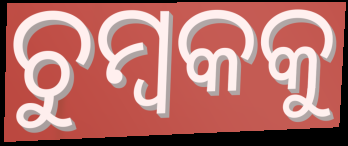
ଚୁମ୍ବକକୁ